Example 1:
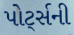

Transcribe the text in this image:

પોર્ટ્સની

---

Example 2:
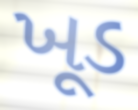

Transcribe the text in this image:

ખૂડ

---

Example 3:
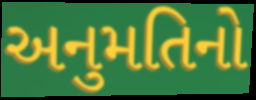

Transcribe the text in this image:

અનુમતિનો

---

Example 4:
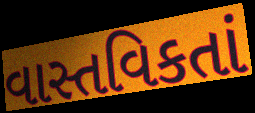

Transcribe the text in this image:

વાસ્તવિકતાં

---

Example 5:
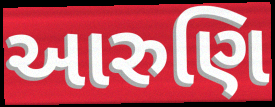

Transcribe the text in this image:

આરુણિ